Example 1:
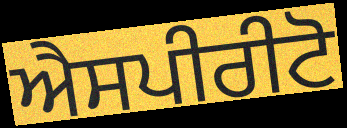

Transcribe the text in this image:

ਐਸਪੀਰੀਟੋ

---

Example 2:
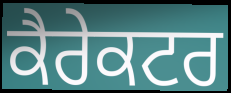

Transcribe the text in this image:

ਕੈਰੇਕਟਰ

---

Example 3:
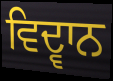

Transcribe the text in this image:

ਵਿਦ੍ਵਾਨ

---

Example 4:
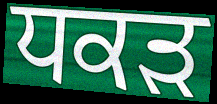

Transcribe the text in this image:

ਧਕੜ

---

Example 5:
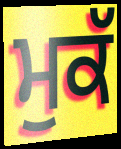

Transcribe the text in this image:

ਮੁਕੱ